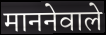
माननेवाले